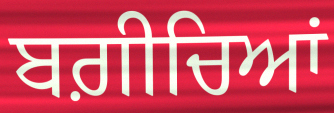
ਬਗ਼ੀਚਿਆਂ